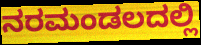
ನರಮಂಡಲದಲ್ಲಿ